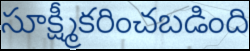
సూక్ష్మీకరించబడింది